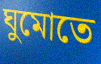
ঘুমোতে